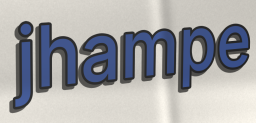
jhampe